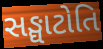
સઙ્ઘાટોતિ